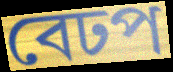
বেঢপ